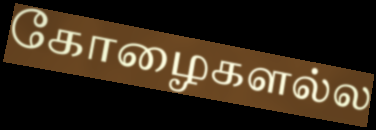
கோழைகளல்ல